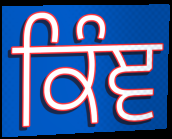
ਕਿੰਞ